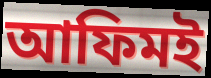
আফিমই